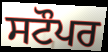
ਸਟੌਪਰ